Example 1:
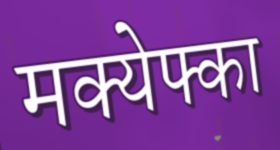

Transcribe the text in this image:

मक्येफ्का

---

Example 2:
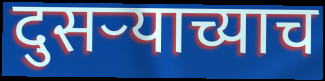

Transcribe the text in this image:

दुसऱ्याच्याच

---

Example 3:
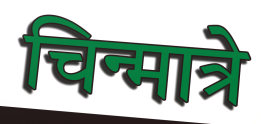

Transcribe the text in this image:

चिन्मात्रे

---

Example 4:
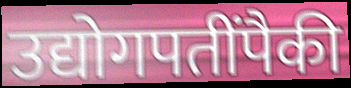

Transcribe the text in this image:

उद्योगपतींपैकी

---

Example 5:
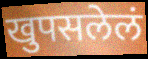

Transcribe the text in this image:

खुपसलेलं